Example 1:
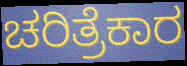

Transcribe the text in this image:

ಚರಿತ್ರೆಕಾರ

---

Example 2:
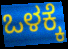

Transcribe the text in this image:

ಒಳಕ್ಕೆ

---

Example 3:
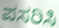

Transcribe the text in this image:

ಪಸರಿಸಿ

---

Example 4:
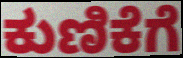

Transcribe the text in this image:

ಕುಣಿಕೆಗೆ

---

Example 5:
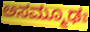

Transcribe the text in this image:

ಅಸಮ್ಮೂಢಃ